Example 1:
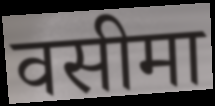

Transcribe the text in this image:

वसीमा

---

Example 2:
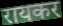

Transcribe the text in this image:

रायकर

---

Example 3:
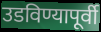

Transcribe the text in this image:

उडविण्यापूर्वी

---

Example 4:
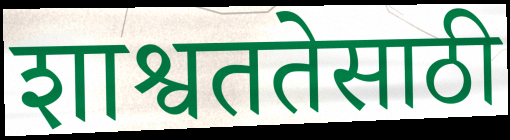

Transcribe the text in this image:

शाश्वततेसाठी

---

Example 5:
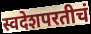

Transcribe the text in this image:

स्वदेशपरतीचं